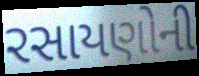
રસાયણોની